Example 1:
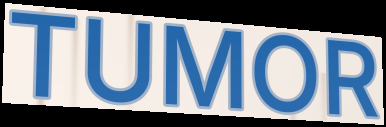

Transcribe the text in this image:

TUMOR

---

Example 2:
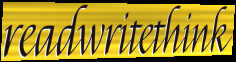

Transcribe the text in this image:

readwritethink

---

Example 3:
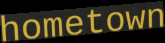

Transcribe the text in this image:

hometown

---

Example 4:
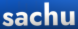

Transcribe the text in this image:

sachu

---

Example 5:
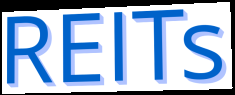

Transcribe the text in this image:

REITs